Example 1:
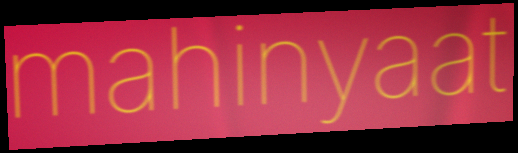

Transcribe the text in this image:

mahinyaat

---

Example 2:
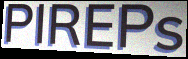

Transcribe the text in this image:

PIREPs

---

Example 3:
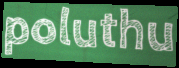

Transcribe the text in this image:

poluthu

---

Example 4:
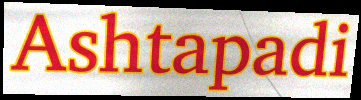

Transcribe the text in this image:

Ashtapadi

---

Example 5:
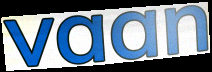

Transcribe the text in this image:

vaan